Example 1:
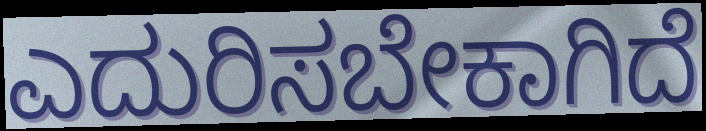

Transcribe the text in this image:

ಎದುರಿಸಬೇಕಾಗಿದೆ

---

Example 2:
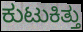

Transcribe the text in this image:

ಕುಟುಕಿತ್ತು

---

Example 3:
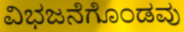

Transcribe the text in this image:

ವಿಭಜನೆಗೊಂಡವು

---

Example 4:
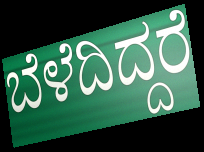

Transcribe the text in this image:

ಬೆಳೆದಿದ್ದರೆ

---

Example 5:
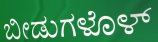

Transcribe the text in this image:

ಬೀಡುಗಳೊಳ್